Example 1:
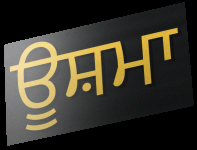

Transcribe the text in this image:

ਊਸ਼ਮਾ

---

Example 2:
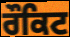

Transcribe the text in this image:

ਰੌਕਿਟ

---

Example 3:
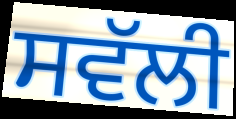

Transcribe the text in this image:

ਸਵੱਲੀ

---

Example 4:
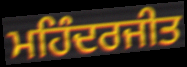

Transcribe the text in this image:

ਮਹਿੰਦਰਜੀਤ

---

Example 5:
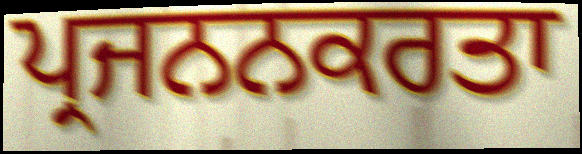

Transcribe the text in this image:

ਪ੍ਰਜਨਨਕਰਤਾ